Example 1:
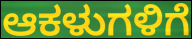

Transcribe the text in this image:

ಆಕಳುಗಳಿಗೆ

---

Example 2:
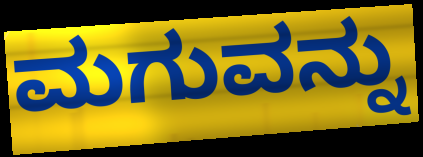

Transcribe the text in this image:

ಮಗುವನ್ನು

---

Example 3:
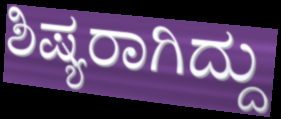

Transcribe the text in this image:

ಶಿಷ್ಯರಾಗಿದ್ದು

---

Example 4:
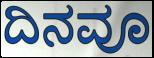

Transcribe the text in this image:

ದಿನವೂ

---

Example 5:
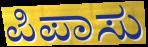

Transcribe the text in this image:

ಪಿಪಾಸು